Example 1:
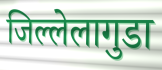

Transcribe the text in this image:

जिल्लेलागुडा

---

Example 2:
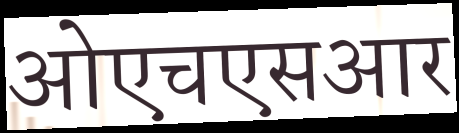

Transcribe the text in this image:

ओएचएसआर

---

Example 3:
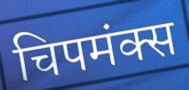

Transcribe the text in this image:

चिपमंक्स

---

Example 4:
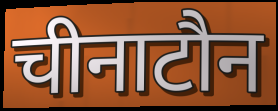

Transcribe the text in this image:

चीनाटौन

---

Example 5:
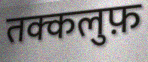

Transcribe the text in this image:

तक्कलुफ़